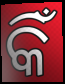
କିଁ